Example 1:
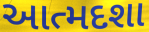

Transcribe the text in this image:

આત્મદશા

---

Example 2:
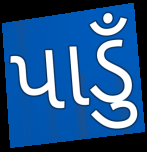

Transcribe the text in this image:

પાડુઁ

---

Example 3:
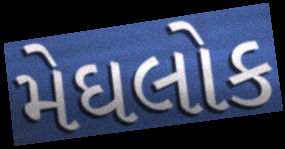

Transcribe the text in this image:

મેઘલોક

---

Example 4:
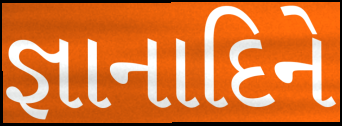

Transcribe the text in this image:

જ્ઞાનાદિને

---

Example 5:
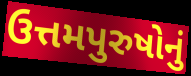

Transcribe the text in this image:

ઉત્તમપુરુષોનું